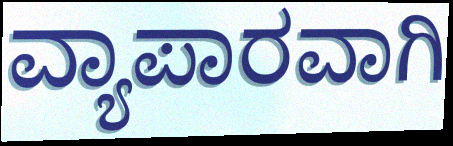
ವ್ಯಾಪಾರವಾಗಿ